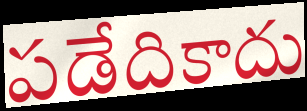
పడేదికాదు